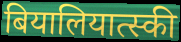
बियालियात्स्की